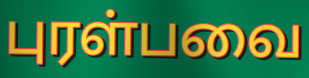
புரள்பவை